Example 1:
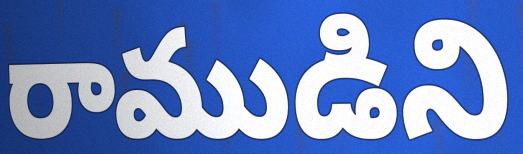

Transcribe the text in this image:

రాముడిని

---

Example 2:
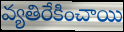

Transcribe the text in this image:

వ్యతిరేకించాయి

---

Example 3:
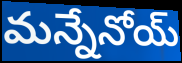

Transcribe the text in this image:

మన్నేనోయ్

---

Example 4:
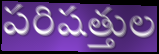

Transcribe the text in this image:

పరిషత్తుల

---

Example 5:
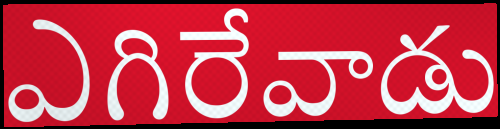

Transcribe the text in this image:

ఎగిరేవాడు